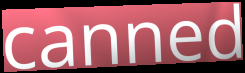
canned